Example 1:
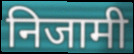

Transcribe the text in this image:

निजामी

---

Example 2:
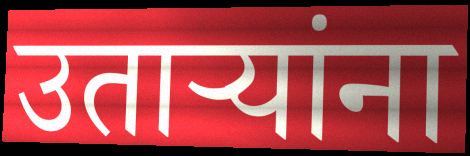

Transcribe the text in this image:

उताऱ्यांना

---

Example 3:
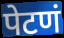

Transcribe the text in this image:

पेटणं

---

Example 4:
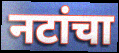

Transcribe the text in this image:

नटांचा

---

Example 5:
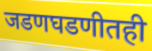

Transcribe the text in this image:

जडणघडणीतही